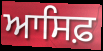
ਆਸਿਫ਼